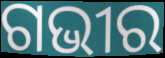
ଗଭୀର